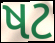
ષટ